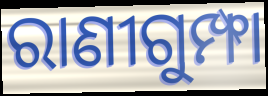
ରାଣୀଗୁମ୍ଫା